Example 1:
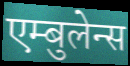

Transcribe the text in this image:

एम्बुलेन्स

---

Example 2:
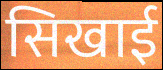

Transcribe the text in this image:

सिखाई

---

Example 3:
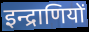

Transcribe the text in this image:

इन्द्राणियों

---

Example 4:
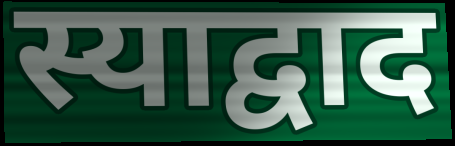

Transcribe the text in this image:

स्याद्वाद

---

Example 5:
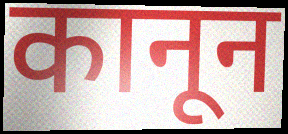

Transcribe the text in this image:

कानून